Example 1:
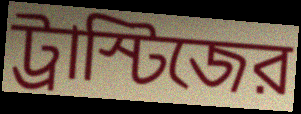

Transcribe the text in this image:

ট্রাস্টিজের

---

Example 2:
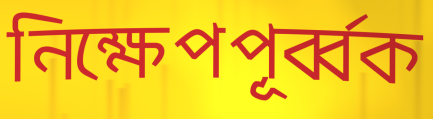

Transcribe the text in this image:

নিক্ষেপপূর্ব্বক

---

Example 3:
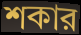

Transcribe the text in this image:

শকার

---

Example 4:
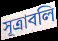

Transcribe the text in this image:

সূত্রাবলি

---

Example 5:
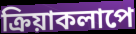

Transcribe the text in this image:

ক্রিয়াকলাপে